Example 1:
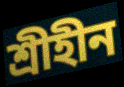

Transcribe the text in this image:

শ্রীহীন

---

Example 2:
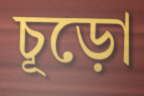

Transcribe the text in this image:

চূড়ো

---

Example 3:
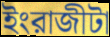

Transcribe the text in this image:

ইংরাজীটা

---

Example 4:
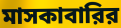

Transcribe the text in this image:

মাসকাবারির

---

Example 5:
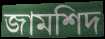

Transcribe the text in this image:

জামশিদ